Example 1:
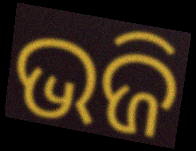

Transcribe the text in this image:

ଭଜି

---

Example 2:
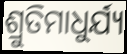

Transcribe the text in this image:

ଶ୍ରୁତିମାଧୁର୍ଯ୍ୟ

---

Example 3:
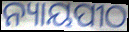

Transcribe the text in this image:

ନ୍ୟାୟପୀଠ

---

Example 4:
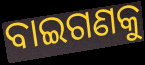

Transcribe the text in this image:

ବାଇଗଣକୁ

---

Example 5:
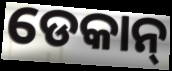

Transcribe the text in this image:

ଡେକାନ୍